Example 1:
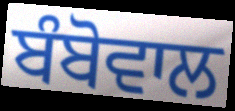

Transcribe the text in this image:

ਬੰਬੋਵਾਲ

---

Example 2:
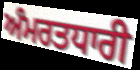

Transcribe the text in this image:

ਅੰਮਰਤਧਾਰੀ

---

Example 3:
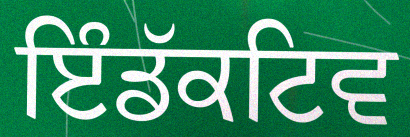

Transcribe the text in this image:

ਇੰਡੱਕਟਿਵ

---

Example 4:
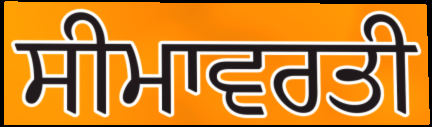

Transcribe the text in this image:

ਸੀਮਾਵਰਤੀ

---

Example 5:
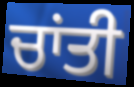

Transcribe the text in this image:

ਚਾਂਤੀ